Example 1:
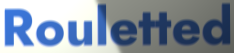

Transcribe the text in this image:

Rouletted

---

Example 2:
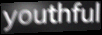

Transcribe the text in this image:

youthful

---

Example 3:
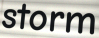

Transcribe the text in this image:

storm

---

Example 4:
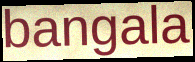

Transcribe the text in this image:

bangala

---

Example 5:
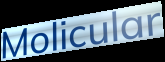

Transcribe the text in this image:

Molicular